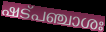
ഷട്പഞ്ചാശഃ